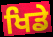
ਖਿਡੇ